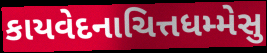
કાયવેદનાચિત્તધમ્મેસુ